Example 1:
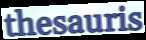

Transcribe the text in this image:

thesauris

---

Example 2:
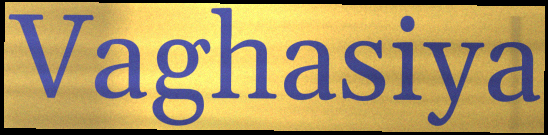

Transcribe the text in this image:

Vaghasiya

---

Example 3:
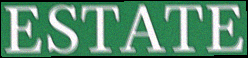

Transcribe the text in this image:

ESTATE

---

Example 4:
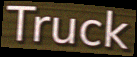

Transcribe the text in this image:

Truck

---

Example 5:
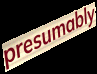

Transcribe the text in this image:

presumably